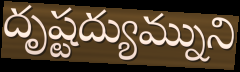
దృష్టద్యుమ్నుని